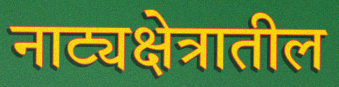
नाट्यक्षेत्रातील